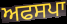
ਅਫਸਪਾ